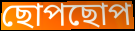
ছোপছোপ